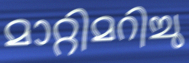
മാറ്റിമറിച്ചു